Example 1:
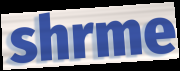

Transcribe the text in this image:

shrme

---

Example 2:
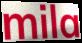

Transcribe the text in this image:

mila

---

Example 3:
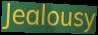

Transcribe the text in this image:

Jealousy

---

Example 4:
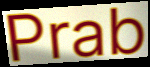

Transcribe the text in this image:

Prab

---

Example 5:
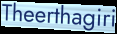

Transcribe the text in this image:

Theerthagiri